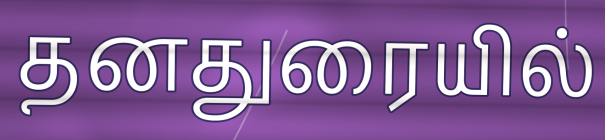
தனதுரையில்